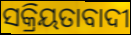
ସକ୍ରିୟତାବାଦୀ